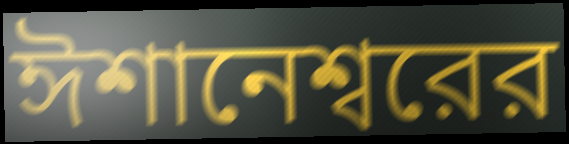
ঈশানেশ্বরের